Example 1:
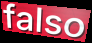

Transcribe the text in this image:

falso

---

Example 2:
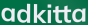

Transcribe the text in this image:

adkitta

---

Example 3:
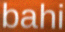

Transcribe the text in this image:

bahi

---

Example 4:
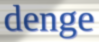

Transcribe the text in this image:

denge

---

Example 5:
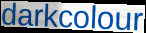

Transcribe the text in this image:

darkcolour